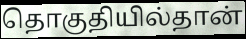
தொகுதியில்தான்